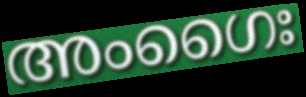
അംഗൈഃ